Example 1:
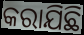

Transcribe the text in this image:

କରାଯିଛି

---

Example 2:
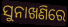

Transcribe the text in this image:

ସୁନାଖଣିରେ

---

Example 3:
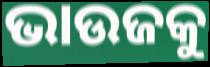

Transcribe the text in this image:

ଭାଉଜକୁ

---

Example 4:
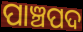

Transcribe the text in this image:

ପାଞ୍ଚପଦ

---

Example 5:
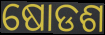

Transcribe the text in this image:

ଷୋଡଶ